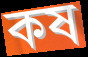
কষ